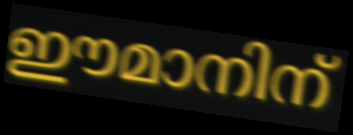
ഈമാനിന്